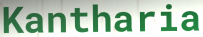
Kantharia